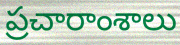
ప్రచారాంశాలు